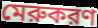
মেরুকরণ